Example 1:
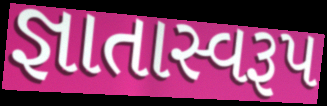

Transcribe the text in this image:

જ્ઞાતાસ્વરૂપ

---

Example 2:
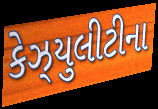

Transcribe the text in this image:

કેઝ્યુલીટીના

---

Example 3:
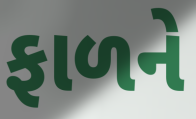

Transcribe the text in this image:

ફાળને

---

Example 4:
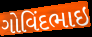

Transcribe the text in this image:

ગોવિંદભાઇ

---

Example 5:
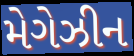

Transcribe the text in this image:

મેગેઝીન